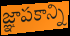
జ్ఞాపకాన్ని